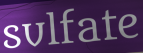
sulfate